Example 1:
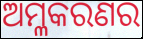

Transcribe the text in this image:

ଅମ୍ଳକରଣର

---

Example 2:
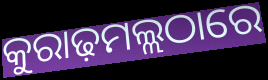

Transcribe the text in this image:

କୁରାଢ଼ମଲ୍ଲଠାରେ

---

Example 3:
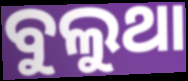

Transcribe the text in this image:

ବୁଲୁଥା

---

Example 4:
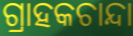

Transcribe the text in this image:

ଗ୍ରାହକଚାନ୍ଦା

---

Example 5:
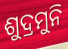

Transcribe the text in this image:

ଶୁଦ୍ରମୁନି